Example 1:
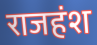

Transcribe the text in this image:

राजहंश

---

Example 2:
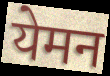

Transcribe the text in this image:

येमन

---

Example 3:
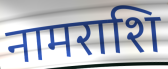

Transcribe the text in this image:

नामराशि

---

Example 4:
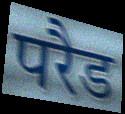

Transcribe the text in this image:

परैड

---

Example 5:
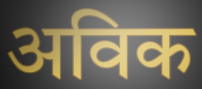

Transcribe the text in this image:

अविक